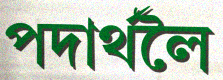
পদাৰ্থলৈ